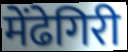
मेंढेगिरी